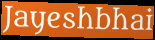
Jayeshbhai